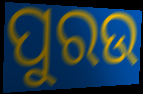
ପୁରଉ